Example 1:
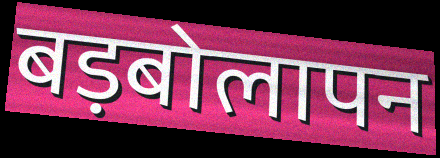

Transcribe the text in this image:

बड़बोलापन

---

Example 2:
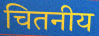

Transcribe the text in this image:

चितनीय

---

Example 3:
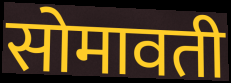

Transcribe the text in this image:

सोमावती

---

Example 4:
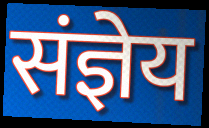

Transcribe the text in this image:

संज्ञेय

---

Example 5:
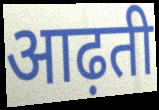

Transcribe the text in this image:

आढ़ती